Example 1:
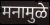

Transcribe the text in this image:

मनामुळे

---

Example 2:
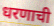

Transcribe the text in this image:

धरणाची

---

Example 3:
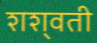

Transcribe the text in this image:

शश्वती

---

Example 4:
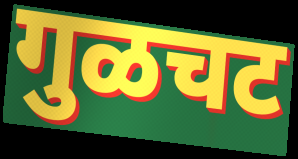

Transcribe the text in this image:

गुळचट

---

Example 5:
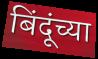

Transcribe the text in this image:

बिंदूंच्या